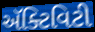
ઍક્ટિવિટી